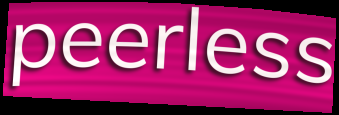
peerless